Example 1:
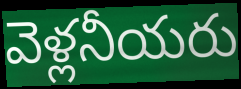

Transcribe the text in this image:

వెళ్లనీయరు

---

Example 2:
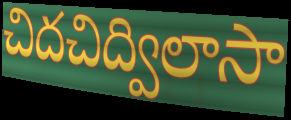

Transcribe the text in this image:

చిదచిద్విలాసా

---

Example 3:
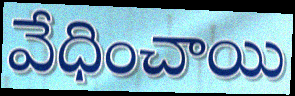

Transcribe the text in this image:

వేధించాయి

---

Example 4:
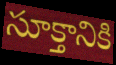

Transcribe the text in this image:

సూక్తానికి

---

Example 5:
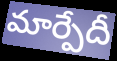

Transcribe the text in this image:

మార్పేదీ